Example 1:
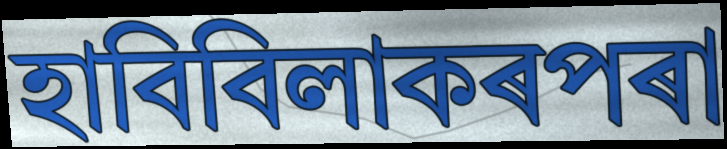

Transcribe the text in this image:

হাবিবিলাকৰপৰা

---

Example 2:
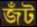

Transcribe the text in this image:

জঁট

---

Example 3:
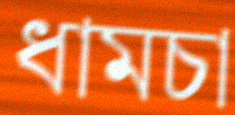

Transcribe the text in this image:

ধামচা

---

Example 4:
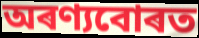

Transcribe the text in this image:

অৰণ্যবোৰত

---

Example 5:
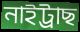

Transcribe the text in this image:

নাইট্ৰাছ